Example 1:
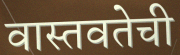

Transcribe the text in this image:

वास्तवतेची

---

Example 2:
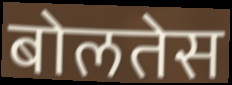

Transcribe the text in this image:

बोलतेस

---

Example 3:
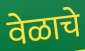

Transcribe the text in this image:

वेळाचे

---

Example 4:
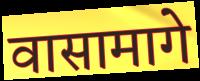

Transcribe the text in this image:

वासामागे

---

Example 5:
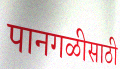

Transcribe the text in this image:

पानगळीसाठी